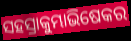
ସହସ୍ରାକୁମ୍ଭାଭିଷେକର